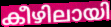
കീഴിലായി